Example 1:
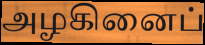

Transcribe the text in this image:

அழகினைப்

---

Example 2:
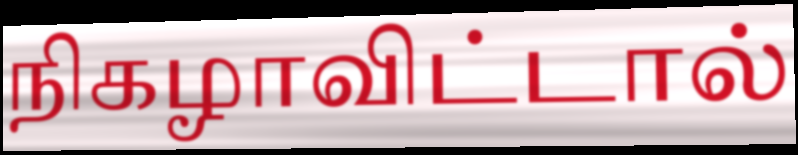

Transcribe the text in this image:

நிகழாவிட்டால்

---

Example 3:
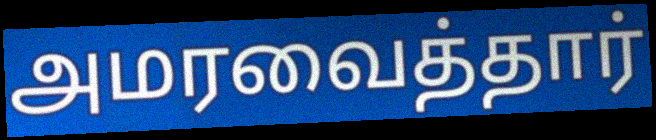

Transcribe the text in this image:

அமரவைத்தார்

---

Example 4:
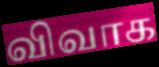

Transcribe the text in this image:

விவாக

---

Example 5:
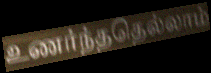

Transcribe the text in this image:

உணர்ந்ததெல்லாம்